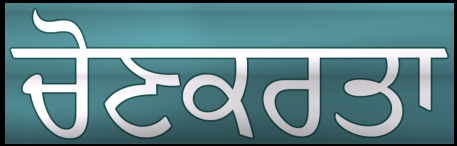
ਚੋਣਕਰਤਾ